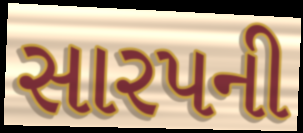
સારપની